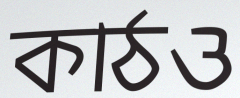
কাঠও